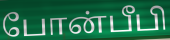
போன்பீபி